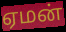
ஏமன்